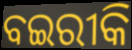
ବଇରୀକି